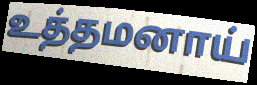
உத்தமனாய்